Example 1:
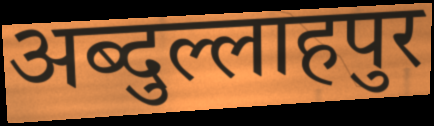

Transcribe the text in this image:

अब्दुल्लाहपुर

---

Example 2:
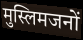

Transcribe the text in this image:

मुस्लिमजनों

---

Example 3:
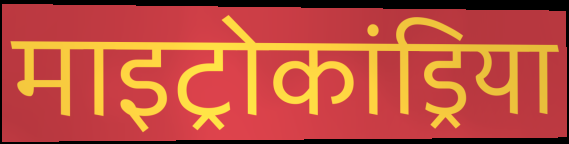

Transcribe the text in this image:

माइट्रोकांड्रिया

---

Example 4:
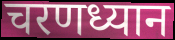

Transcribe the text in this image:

चरणध्यान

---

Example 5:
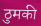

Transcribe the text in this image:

ठुमकी